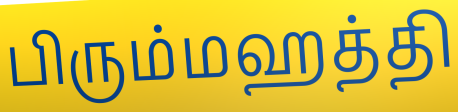
பிரும்மஹத்தி